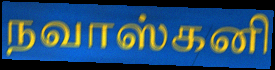
நவாஸ்கனி